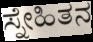
ಸ್ನೇಹಿತನ